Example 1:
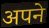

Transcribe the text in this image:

अपने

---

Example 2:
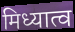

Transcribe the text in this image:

मिध्यात्व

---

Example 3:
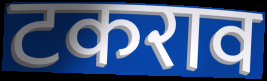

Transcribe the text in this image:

टकराव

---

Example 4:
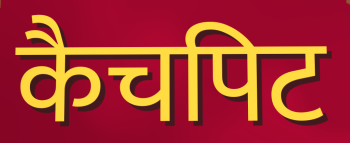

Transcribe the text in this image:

कैचपिट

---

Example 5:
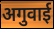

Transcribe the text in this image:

अगुवाई